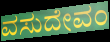
ವಸುದೇವಂ